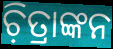
ଚ଼ିତ୍ରାଙ୍କନ